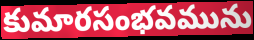
కుమారసంభవమును